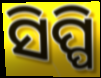
ସିପ୍ପି